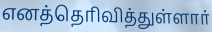
எனத்தெரிவித்துள்ளார்